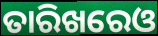
ତାରିଖରେଓ